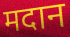
मदान